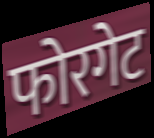
फोरगेट